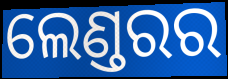
ଲେଣ୍ଡରର